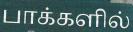
பாக்களில்